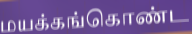
மயக்கங்கொண்ட